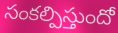
సంకల్పిస్తుందో